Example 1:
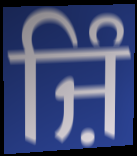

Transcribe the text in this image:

ਜ਼ਿੰ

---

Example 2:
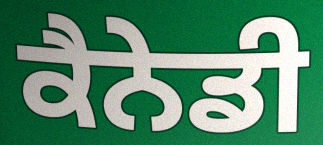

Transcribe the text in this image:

ਕੈਨੇਡੀ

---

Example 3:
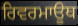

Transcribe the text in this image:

ਰਿਵਰਮਾਊਥ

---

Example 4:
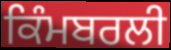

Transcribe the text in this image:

ਕਿੰਮਬਰਲੀ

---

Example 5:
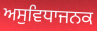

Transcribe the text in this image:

ਅਸੁਵਿਧਾਜਨਕ